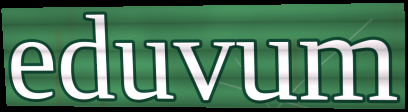
eduvum